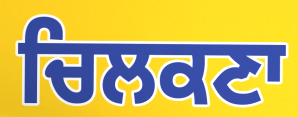
ਚਿਲਕਣਾ